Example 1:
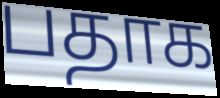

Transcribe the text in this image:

பதாக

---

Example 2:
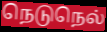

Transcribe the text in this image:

நெடுநெல்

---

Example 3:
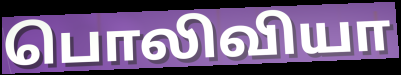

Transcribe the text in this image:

பொலிவியா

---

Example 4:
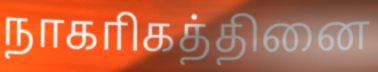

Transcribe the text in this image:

நாகரிகத்தினை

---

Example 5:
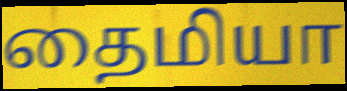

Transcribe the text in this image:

தைமியா